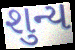
શુન્ય